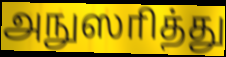
அநுஸரித்து